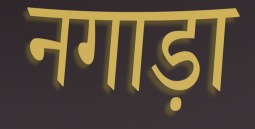
नगाड़ा